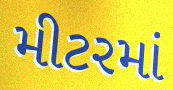
મીટરમાં